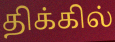
திக்கில்